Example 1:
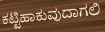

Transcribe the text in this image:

ಕಟ್ಟಿಹಾಕುವುದಾಗಲಿ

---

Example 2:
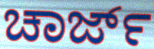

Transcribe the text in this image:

ಚಾರ್ಜ್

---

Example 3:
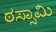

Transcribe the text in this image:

ಠಸ್ಸಾಮಿ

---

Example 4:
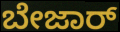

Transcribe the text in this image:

ಬೇಜಾರ್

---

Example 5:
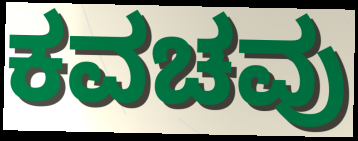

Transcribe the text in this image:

ಕವಚವು